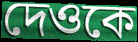
দেওকে